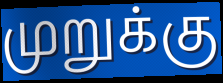
முறுக்கு